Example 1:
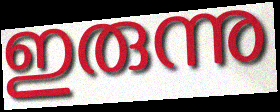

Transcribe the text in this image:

ഇരുന്നു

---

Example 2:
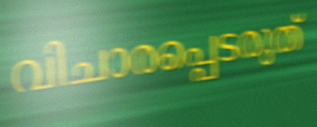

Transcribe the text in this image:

വിചാരപ്പെടരുത്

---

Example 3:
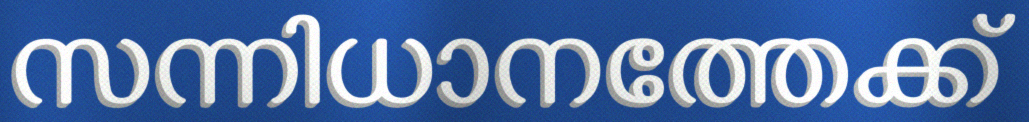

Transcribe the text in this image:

സന്നിധാനത്തേക്ക്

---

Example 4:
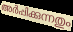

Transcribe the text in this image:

അർപ്പിക്കുന്നതും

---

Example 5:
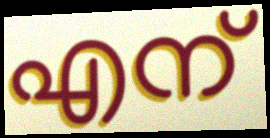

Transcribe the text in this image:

എന്